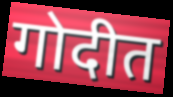
गोदीत